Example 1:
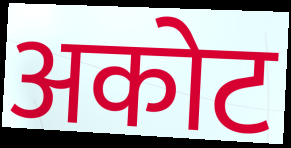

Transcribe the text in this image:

अकोट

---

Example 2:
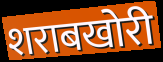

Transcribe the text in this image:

शराबखोरी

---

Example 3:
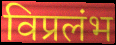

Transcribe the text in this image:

विप्रलंभ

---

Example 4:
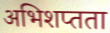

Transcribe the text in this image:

अभिशप्तता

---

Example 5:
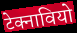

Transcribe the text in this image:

टेक्नावियो